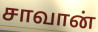
சாவான்